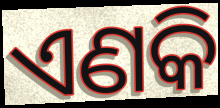
ଏଣକି